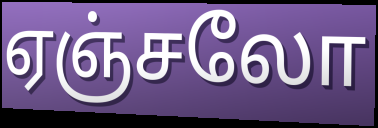
ஏஞ்சலோ